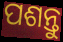
ପଶନ୍ତୁ